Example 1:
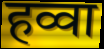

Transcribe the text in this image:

हव्वा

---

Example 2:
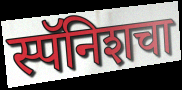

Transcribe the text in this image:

स्पॅनिशचा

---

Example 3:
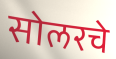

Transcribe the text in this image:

सोलरचे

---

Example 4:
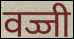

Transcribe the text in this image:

वज्जी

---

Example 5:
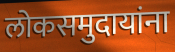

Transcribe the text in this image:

लोकसमुदायांना